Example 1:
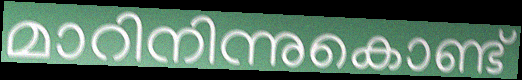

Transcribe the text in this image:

മാറിനിന്നുകൊണ്ട്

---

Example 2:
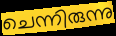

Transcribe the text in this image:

ചെന്നിരുന്നു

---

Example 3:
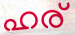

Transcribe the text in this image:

ഹര്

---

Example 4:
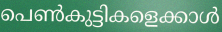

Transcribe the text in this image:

പെൺകുട്ടികളെക്കാൾ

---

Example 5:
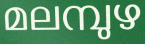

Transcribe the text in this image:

മലമ്പുഴ